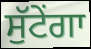
ਸੁੱਟੇਂਗਾ